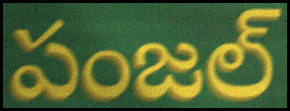
పంజల్